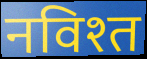
नविश्त